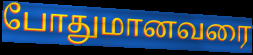
போதுமானவரை